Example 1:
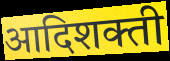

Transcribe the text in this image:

आदिशक्ती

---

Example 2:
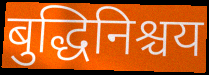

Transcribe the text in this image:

बुद्धिनिश्चय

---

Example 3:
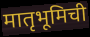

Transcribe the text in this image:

मातृभूमिची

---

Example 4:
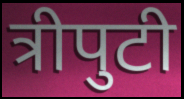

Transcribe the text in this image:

त्रीपुटी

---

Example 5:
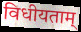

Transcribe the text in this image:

विधीयताम्